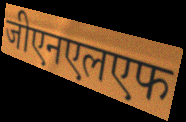
जीएनएलएफ